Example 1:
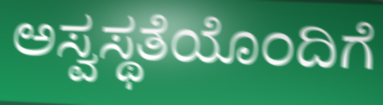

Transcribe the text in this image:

ಅಸ್ವಸ್ಥತೆಯೊಂದಿಗೆ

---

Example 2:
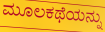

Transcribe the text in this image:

ಮೂಲಕಥೆಯನ್ನು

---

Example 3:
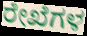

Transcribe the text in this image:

ರೇಖೆಗಳ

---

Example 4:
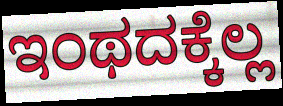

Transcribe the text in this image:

ಇಂಥದಕ್ಕೆಲ್ಲ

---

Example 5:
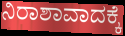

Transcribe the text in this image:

ನಿರಾಶಾವಾದಕ್ಕೆ